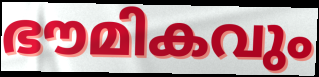
ഭൗമികവും